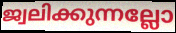
ജ്വലിക്കുന്നല്ലോ